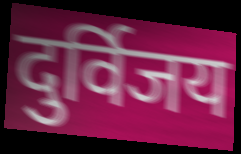
दुर्विजय